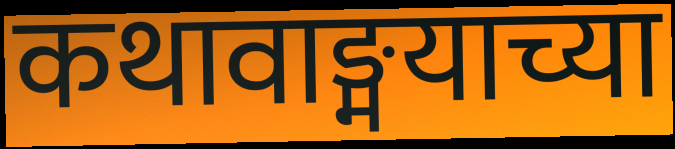
कथावाङ्मयाच्या